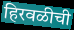
हिरवळीची